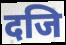
दजि